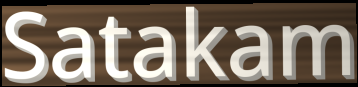
Satakam